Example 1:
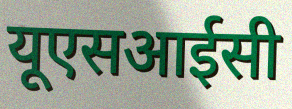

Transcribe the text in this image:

यूएसआईसी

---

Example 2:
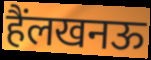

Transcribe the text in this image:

हैंलखनऊ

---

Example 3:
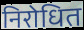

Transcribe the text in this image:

निरोधित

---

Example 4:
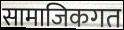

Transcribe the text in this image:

सामाजिकगत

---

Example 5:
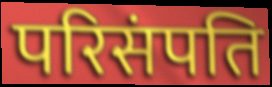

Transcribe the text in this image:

परिसंपति